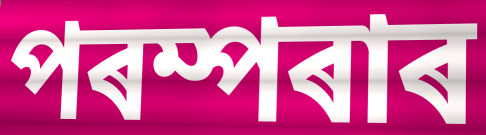
পৰম্পৰাৰ